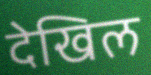
देखिल